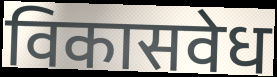
विकासवेध